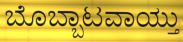
ಬೊಬ್ಬಾಟವಾಯ್ತು